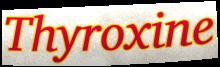
Thyroxine